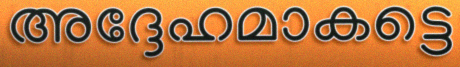
അദ്ദേഹമാകട്ടെ